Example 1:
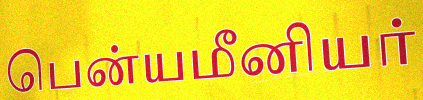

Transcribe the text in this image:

பென்யமீனியர்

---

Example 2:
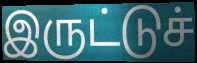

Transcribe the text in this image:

இருட்டுச்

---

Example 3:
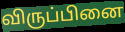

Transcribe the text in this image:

விருப்பினை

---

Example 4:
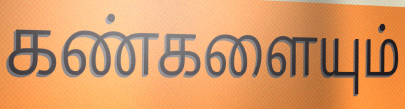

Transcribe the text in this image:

கண்களையும்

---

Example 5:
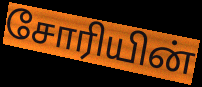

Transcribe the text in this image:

சோரியின்